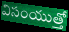
విసంయుత్తో